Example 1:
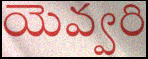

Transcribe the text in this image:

యెవ్వరి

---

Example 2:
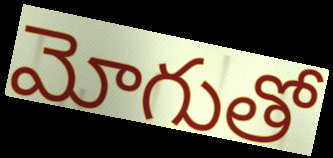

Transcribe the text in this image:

మోగుతో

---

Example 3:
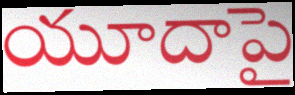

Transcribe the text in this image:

యూదాపై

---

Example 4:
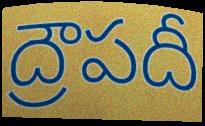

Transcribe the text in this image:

ద్రౌపదీ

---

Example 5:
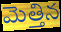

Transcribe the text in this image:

మెత్తిన